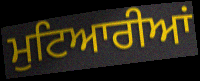
ਮੁਟਿਆਰੀਆਂ